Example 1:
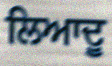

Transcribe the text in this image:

ਲਿਆਦੂ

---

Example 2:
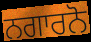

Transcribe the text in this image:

ਨਗਾਰਨੋ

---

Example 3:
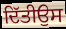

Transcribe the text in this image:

ਦਿੱਤੀਉਸ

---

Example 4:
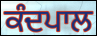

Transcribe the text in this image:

ਕੰਦਪਾਲ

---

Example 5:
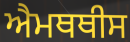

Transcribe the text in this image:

ਐਮਥਥੀਸ